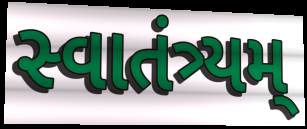
સ્વાતંત્ર્યમ્